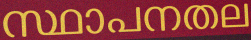
സ്ഥാപനതല